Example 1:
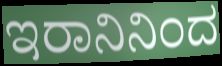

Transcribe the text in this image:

ಇರಾನಿನಿಂದ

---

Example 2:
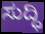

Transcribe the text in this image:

ಸುದ್ಧಿ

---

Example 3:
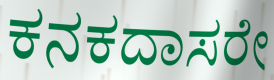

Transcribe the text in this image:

ಕನಕದಾಸರೇ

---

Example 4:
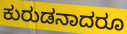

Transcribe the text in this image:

ಕುರುಡನಾದರೂ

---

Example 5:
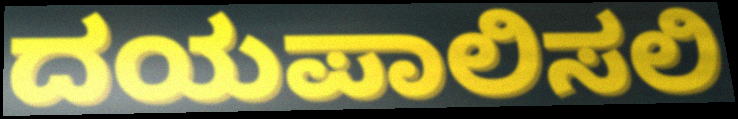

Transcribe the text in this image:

ದಯಪಾಲಿಸಲಿ